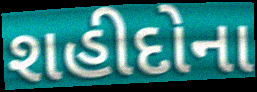
શહીદોના